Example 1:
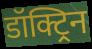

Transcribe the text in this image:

डॉक्ट्रिन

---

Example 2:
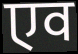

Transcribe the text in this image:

एव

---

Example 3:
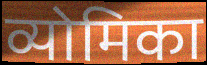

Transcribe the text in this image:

व्योमिका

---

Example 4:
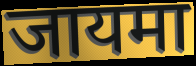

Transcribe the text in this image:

जायमा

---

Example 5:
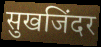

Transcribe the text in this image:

सुखजिंदर